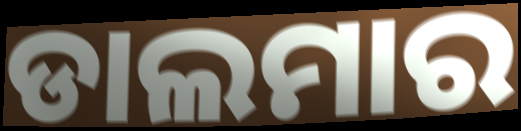
ଡାଲମାର